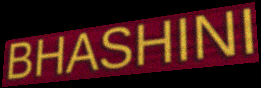
BHASHINI